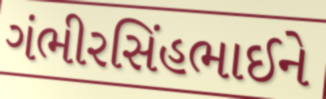
ગંભીરસિંહભાઈને